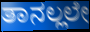
ತಾನಲ್ಲಲೇ